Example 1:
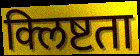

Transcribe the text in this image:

क्‍लिष्टता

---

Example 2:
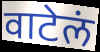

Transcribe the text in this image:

वाटेलं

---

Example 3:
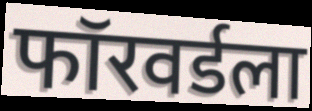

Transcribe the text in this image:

फॉरवर्डला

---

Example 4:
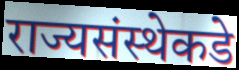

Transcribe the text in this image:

राज्यसंस्थेकडे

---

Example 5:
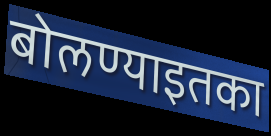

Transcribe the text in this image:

बोलण्याइतका